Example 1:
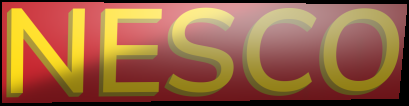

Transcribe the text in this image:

NESCO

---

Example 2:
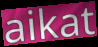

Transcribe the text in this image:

aikat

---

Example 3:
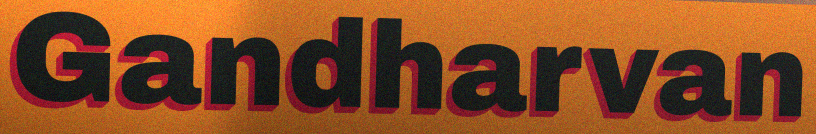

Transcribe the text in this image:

Gandharvan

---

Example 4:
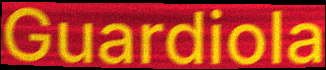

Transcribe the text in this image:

Guardiola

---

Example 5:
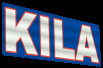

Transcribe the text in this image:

KILA